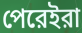
পেরেইরা